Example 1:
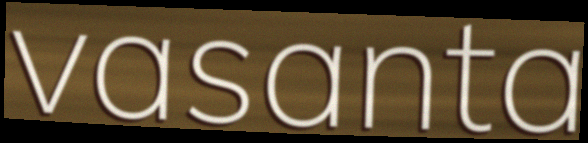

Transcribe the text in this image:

vasanta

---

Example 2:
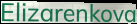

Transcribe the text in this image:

Elizarenkova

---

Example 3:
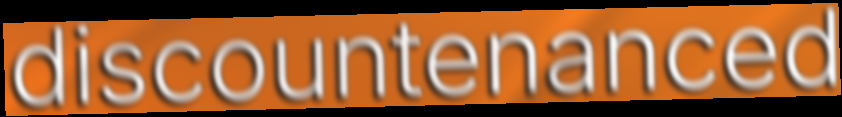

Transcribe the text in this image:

discountenanced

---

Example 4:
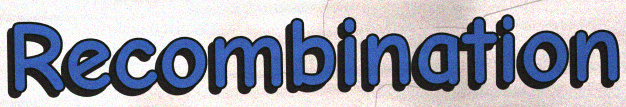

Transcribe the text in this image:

Recombination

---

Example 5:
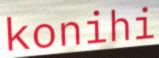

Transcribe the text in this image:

konihi